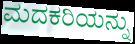
ಮದಕರಿಯನ್ನು